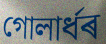
গোলাৰ্ধৰ